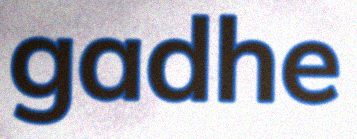
gadhe